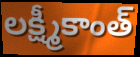
లక్ష్మీకాంత్